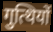
गुत्थियों